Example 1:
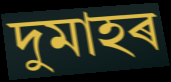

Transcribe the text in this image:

দুমাহৰ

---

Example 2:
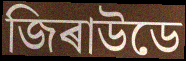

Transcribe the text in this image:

জিৰাউডে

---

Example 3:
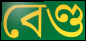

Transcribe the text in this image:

বেণ্ড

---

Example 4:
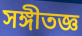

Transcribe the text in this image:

সঙ্গীতজ্ঞ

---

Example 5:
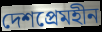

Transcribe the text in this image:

দেশপ্ৰেমহীন